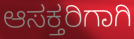
ಆಸಕ್ತರಿಗಾಗಿ